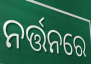
ନର୍ତ୍ତନରେ